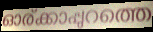
ഓര്ക്കാപ്പുറത്തെ